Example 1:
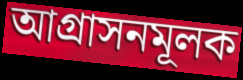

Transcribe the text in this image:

আগ্রাসনমূলক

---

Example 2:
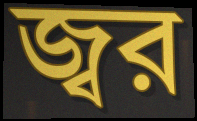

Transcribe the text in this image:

জ্বর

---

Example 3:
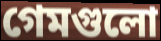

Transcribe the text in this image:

গেমগুলো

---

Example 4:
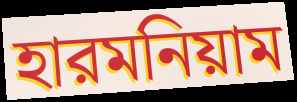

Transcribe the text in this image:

হারমনিয়াম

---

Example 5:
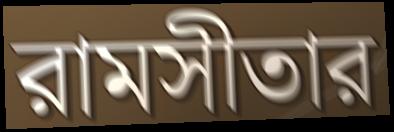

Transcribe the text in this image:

রামসীতার